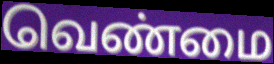
வெண்மை